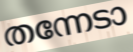
തന്നേടാ